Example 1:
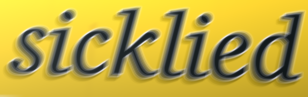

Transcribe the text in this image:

sicklied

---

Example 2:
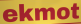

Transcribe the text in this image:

ekmot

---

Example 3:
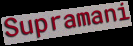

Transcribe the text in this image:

Supramani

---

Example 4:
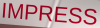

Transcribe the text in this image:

IMPRESS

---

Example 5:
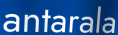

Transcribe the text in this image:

antarala